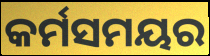
କର୍ମସମୟର